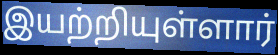
இயற்றியுள்ளார்